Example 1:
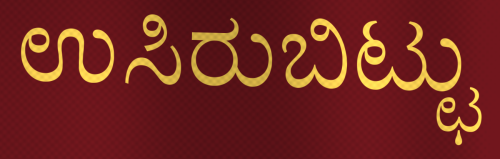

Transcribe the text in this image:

ಉಸಿರುಬಿಟ್ಟು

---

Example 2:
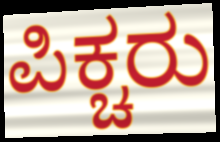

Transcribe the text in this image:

ಪಿಕ್ಚರು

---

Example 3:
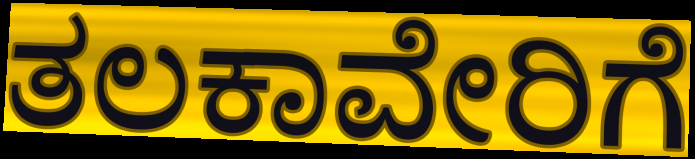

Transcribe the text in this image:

ತಲಕಾವೇರಿಗೆ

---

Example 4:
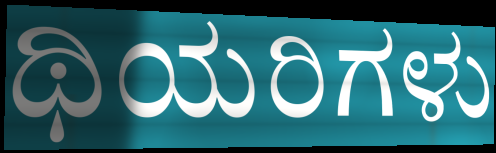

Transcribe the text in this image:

ಥಿಯರಿಗಳು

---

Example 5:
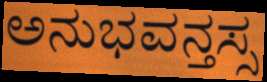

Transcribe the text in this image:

ಅನುಭವನ್ತಸ್ಸ